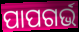
ପାପଗର୍ଭ